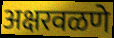
अक्षरवळणे